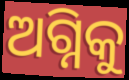
ଅଗ୍ନିକୁ